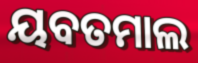
ୟବତମାଲ